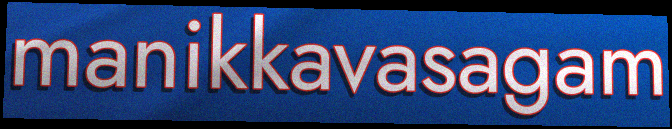
manikkavasagam